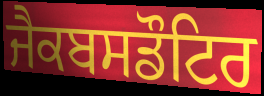
ਜੈਕਬਸਡੌਟਿਰ